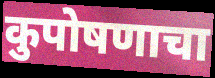
कुपोषणाचा